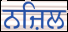
ਨਜ਼ਿਲ